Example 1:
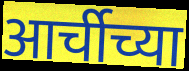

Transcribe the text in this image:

आर्चीच्या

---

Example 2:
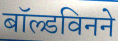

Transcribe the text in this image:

बॉल्डविनने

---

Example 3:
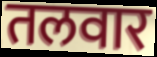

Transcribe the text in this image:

तलवार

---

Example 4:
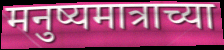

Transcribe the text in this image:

मनुष्यमात्राच्या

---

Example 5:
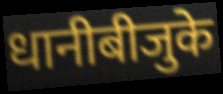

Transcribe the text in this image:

धानीबीजुके